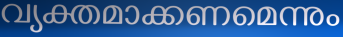
വ്യക്തമാക്കണമെന്നും